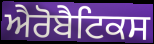
ਐਰੋਬੈਟਿਕਸ